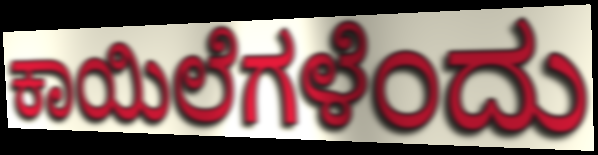
ಕಾಯಿಲೆಗಳೆಂದು